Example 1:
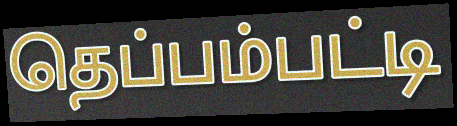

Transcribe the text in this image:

தெப்பம்பட்டி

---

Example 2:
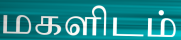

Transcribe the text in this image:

மகளிடம்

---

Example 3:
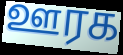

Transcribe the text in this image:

ஊரக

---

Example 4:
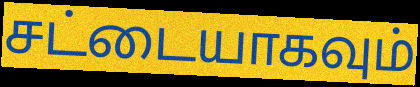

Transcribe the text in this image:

சட்டையாகவும்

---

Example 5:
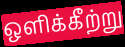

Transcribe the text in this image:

ஒளிக்கீற்று